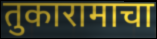
तुकारामाचा